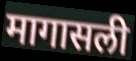
मागासली